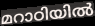
മറാഠിയിൽ